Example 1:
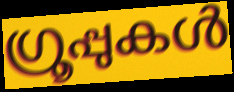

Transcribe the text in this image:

ഗ്രൂപ്പുകൾ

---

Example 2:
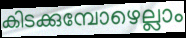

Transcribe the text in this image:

കിടക്കുമ്പോഴെല്ലാം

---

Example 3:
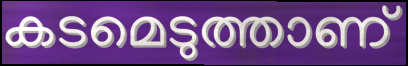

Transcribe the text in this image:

കടമെടുത്താണ്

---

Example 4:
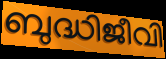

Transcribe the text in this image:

ബുദ്ധിജീവി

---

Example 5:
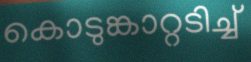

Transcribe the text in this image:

കൊടുങ്കാറ്റടിച്ച്